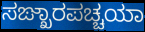
ಸಙ್ಖಾರಪಚ್ಚಯಾ